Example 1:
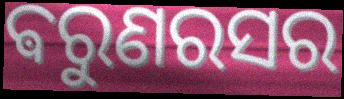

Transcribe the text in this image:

ଵରୁଣରସର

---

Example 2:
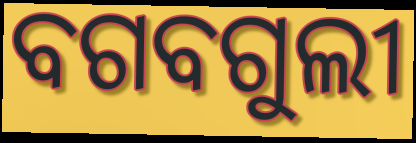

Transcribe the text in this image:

ବଗବଗୁଲୀ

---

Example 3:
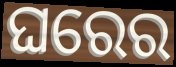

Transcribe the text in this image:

ଘରେର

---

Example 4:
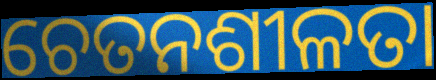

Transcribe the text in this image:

ଚେତନଶୀଳତା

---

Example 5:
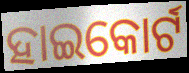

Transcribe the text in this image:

ହାଇକୋର୍ଟ